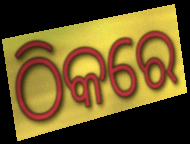
ଠିକରେ